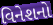
વિનેશનો